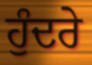
ਹੁੰਦਰੇ